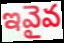
ఇవైవ